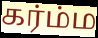
கர்ம்ம